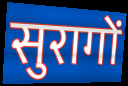
सुरागों